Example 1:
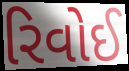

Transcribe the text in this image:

રિવોઈ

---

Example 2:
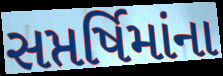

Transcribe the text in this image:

સપ્તર્ષિમાંના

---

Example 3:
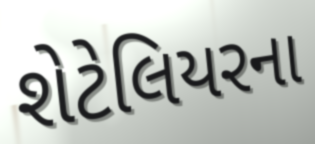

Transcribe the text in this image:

શેટેલિયરના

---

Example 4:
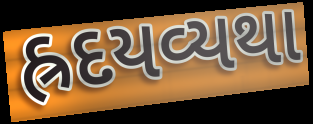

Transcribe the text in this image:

હ્રદયવ્યથા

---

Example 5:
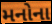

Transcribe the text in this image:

મનોના